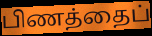
பிணத்தைப்